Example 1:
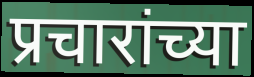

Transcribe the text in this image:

प्रचारांच्या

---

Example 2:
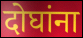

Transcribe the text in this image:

दोघांना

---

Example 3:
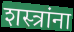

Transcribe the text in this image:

शस्त्रांना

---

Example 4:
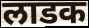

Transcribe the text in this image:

लाडक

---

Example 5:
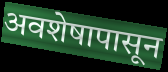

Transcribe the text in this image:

अवशेषापासून